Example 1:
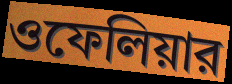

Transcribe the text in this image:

ওফেলিয়ার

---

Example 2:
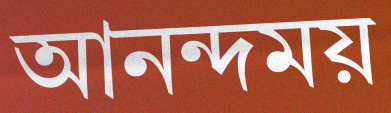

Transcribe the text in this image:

আনন্দময়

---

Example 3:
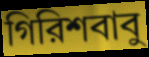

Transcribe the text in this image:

গিরিশবাবু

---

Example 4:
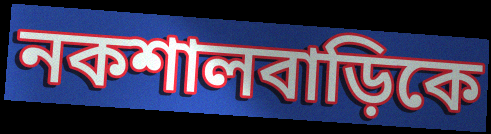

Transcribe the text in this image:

নকশালবাড়িকে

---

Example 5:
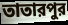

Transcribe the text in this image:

তাতারপুর